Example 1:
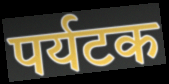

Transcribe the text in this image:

पर्यटक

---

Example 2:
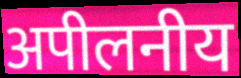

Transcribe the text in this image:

अपीलनीय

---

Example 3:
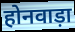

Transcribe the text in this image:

होनवाड़ा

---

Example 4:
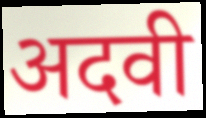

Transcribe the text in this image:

अदवी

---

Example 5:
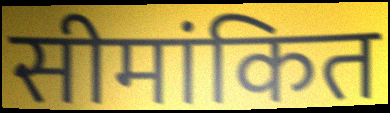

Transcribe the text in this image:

सीमांकित